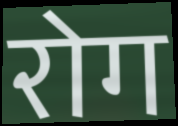
रोग